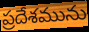
ప్రదేశమును